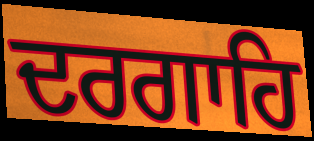
ਦਰਗਾਹਿ